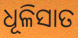
ଧୂଳିସାତ